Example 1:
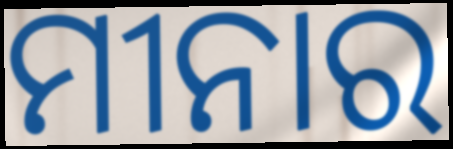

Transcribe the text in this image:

ମୀନାର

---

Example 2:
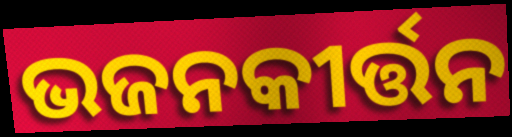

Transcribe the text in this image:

ଭଜନକୀର୍ତ୍ତନ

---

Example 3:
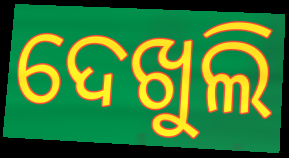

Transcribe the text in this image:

ଦେଖୁଲି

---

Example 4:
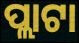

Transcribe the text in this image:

ପ୍ଲାଟା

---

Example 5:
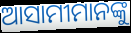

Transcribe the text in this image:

ଆସାମୀମାନଙ୍କୁ